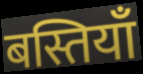
बस्तियाँ